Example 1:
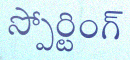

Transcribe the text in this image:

స్పోర్టింగ్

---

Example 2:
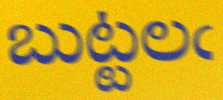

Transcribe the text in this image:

బుట్టలఁ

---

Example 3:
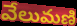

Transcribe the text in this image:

వేలుమణి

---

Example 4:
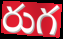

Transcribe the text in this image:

రుగ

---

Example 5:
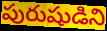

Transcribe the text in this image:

పురుషుడిని